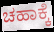
ಚಹಾಕ್ಕೆ